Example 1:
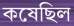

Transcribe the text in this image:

কষেছিল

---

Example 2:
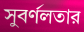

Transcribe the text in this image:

সুবর্ণলতার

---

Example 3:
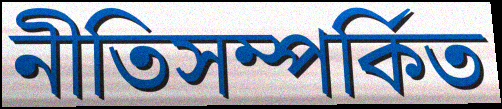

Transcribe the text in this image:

নীতিসম্পর্কিত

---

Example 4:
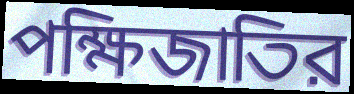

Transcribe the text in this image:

পক্ষিজাতির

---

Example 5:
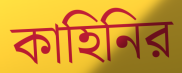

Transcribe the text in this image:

কাহিনির